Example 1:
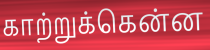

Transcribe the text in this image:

காற்றுக்கென்ன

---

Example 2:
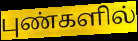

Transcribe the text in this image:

புண்களில்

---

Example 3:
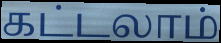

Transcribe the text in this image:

கட்டலாம்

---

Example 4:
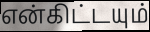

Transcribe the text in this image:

என்கிட்டயும்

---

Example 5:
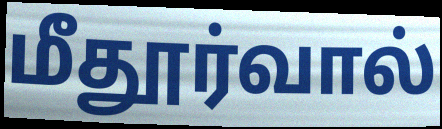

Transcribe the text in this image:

மீதூர்வால்